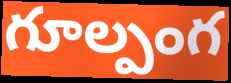
గూల్పంగ